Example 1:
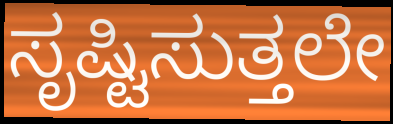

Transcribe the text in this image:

ಸೃಷ್ಟಿಸುತ್ತಲೇ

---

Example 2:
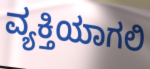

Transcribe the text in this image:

ವ್ಯಕ್ತಿಯಾಗಲಿ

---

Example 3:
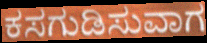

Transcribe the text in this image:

ಕಸಗುಡಿಸುವಾಗ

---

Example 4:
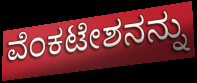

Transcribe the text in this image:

ವೆಂಕಟೇಶನನ್ನು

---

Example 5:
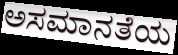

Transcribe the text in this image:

ಅಸಮಾನತೆಯ